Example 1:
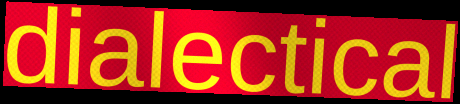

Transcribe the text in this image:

dialectical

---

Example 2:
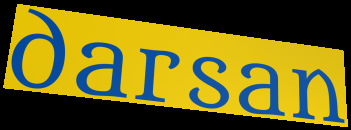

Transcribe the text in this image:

darsan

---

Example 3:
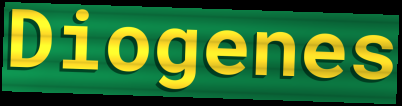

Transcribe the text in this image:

Diogenes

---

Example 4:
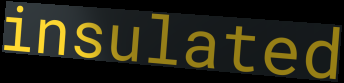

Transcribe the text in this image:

insulated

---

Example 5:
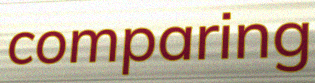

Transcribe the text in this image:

comparing